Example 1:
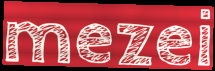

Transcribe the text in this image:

mezei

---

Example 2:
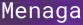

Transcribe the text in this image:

Menaga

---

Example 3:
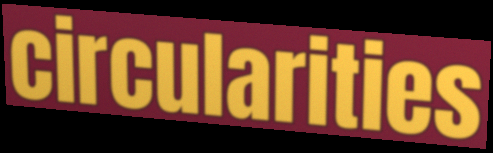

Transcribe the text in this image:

circularities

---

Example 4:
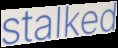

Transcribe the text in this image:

stalked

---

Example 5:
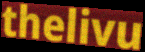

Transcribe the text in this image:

thelivu